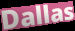
Dallas